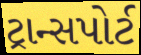
ટ્રાન્સપોર્ટ